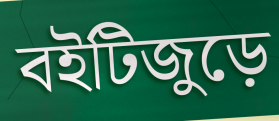
বইটিজুড়ে